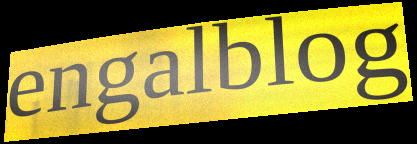
engalblog